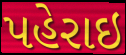
પહેરાઇ